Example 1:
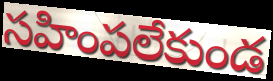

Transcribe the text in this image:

సహింపలేకుండ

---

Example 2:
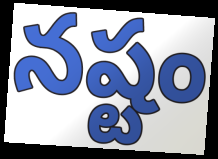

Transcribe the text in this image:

నష్టం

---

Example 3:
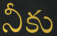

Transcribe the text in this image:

నీకు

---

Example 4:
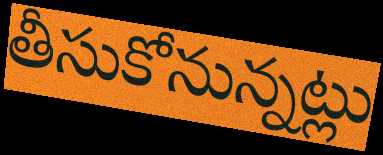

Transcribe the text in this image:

తీసుకోనున్నట్లు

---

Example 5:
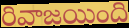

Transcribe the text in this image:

రివాజయింది